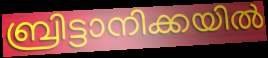
ബ്രിട്ടാനിക്കയിൽ